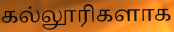
கல்லூரிகளாக